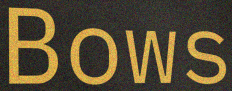
Bows